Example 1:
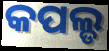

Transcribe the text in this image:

କପଲ୍ଡ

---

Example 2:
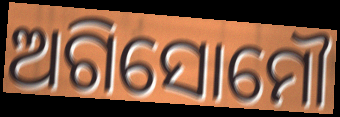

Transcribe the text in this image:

ଅଗିସୋମୌ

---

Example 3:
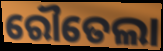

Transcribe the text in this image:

ରୌତେଲା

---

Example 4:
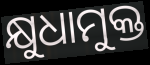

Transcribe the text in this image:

କ୍ଷୁଧାମୁକ୍ତ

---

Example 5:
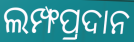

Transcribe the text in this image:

ଲମ୍ଫପ୍ରଦାନ